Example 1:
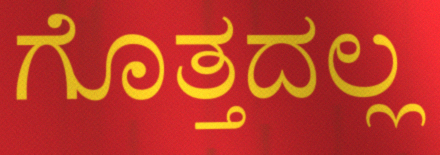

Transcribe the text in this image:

ಗೊತ್ತದಲ್ಲ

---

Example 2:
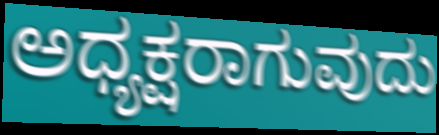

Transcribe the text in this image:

ಅಧ್ಯಕ್ಷರಾಗುವುದು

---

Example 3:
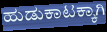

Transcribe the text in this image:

ಹುಡುಕಾಟಕ್ಕಾಗಿ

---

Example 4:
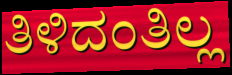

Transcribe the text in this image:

ತಿಳಿದಂತಿಲ್ಲ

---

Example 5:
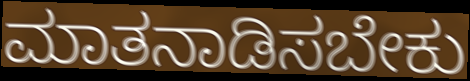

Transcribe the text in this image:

ಮಾತನಾಡಿಸಬೇಕು